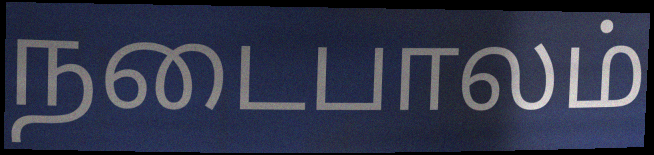
நடைபாலம்